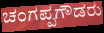
ಚಂಗಪ್ಪಗೌಡರು